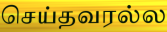
செய்தவரல்ல